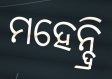
ମହେନ୍ଦ୍ରି